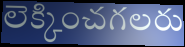
లెక్కించగలరు